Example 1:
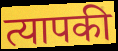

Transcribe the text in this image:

त्यापकी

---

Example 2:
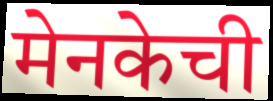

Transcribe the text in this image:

मेनकेची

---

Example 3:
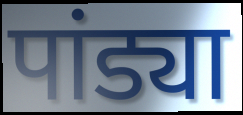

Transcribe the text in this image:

पांड्या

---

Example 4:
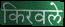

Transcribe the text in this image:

किरवले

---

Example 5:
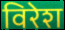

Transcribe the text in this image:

विरेश